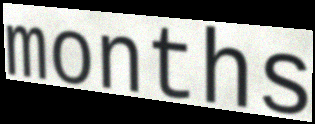
months